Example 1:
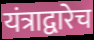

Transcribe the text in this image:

यंत्राद्वारेच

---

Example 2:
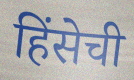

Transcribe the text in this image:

हिंसेची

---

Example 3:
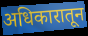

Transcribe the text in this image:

अधिकारातून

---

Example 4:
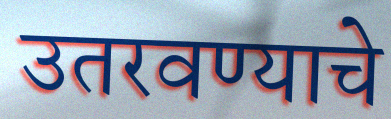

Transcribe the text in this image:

उतरवण्याचे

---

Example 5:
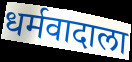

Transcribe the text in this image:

धर्मवादाला